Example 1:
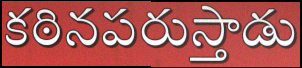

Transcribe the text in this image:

కఠినపరుస్తాడు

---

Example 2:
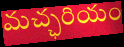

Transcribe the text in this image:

మచ్ఛరియం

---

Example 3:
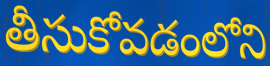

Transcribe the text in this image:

తీసుకోవడంలోని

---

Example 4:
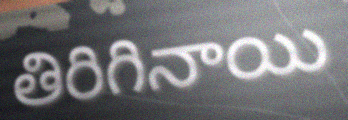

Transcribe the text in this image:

తిరిగినాయి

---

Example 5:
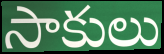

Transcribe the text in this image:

సాకులు